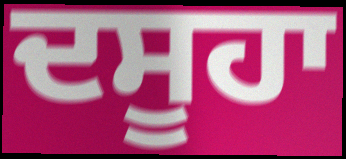
ਦਸੂਹਾ